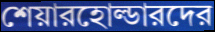
শেয়ারহোল্ডারদের